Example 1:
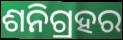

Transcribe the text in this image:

ଶନିଗ୍ରହର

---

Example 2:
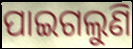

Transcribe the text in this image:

ପାଇଗଲୁଣି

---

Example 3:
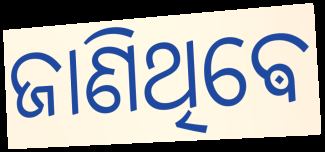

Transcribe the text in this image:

ଜାଣିଥିଵେ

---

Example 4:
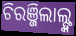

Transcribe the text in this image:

ଚିରଞ୍ଜିଲାଲ୍ଙ୍କ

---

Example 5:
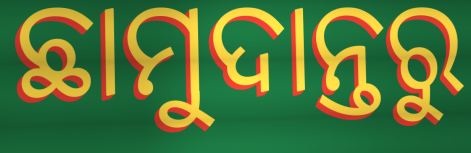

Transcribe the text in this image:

ଛାମୁଦାନ୍ତରୁ